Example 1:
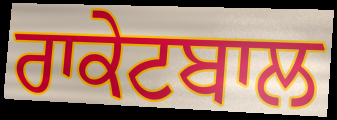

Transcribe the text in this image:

ਰਾਕੇਟਬਾਲ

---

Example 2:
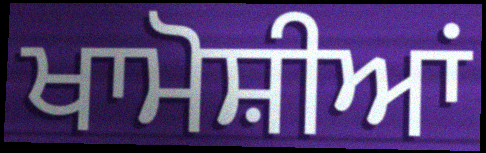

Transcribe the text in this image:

ਖਾਮੋਸ਼ੀਆਂ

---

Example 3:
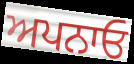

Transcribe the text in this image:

ਅਪਨਾਓ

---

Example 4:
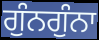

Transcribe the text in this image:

ਗੁੰਨਗੁੰਨਾ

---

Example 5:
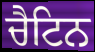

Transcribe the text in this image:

ਚੈਟਿਨ